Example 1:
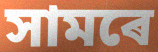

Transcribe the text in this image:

সামৰে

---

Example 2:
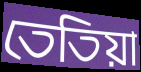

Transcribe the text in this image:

তেতিয়া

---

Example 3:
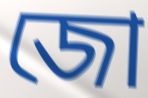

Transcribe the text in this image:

জো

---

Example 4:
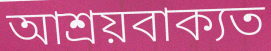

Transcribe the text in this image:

আশ্ৰয়বাক্যত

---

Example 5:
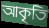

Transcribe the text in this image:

আকৃতি